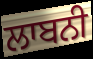
ਲਾਬਨੀ